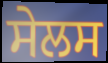
ਸੇਲਸ